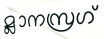
മ്ലാനസ്രഗ്